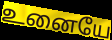
உனையே